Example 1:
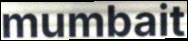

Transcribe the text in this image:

mumbait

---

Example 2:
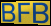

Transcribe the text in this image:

BFB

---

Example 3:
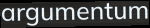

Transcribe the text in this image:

argumentum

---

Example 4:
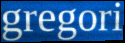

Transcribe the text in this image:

gregori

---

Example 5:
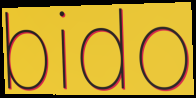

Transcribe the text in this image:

bido